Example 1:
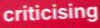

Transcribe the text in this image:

criticising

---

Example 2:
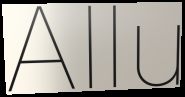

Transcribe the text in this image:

Allu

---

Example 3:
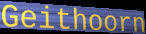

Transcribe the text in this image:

Geithoorn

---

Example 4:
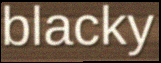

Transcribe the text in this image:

blacky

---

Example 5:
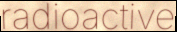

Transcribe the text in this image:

radioactive